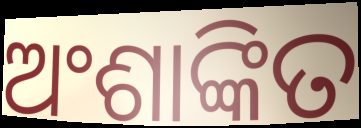
ଅଂଶାଙ୍କିତ